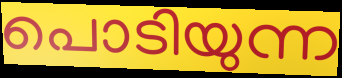
പൊടിയുന്ന